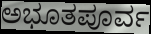
ಅಭೂತಪೂರ್ವ